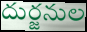
దుర్జనుల